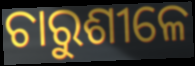
ଚାରୁଶୀଳେ